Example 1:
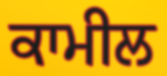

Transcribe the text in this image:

ਕਾਮੀਲ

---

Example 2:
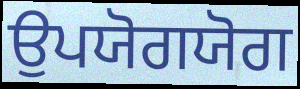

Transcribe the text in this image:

ਉਪਯੋਗਯੋਗ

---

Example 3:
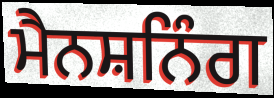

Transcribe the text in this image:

ਮੈਨਸ਼ਨਿੰਗ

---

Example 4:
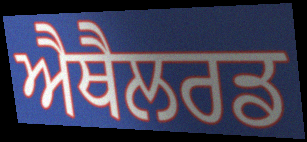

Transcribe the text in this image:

ਐਥੈਲਰਡ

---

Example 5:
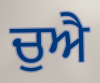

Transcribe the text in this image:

ਚੁਐ